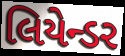
લિયેન્ડર